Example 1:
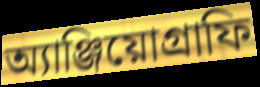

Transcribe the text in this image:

অ্যাঞ্জিয়োগ্রাফি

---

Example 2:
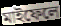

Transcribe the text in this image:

মাইফেলে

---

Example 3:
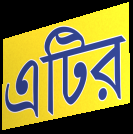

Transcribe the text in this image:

এটির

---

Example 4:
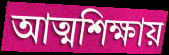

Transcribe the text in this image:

আত্মশিক্ষায়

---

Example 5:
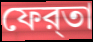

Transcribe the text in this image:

ফের্‌তা